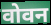
वोवन